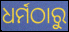
ଧର୍ମଠାରୁ